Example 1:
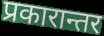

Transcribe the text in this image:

प्रकारान्तर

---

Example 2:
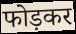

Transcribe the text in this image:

फोड़कर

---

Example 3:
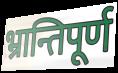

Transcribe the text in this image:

भ्रान्तिपूर्ण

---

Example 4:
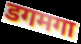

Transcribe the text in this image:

डगमगा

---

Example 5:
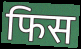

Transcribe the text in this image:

फिस